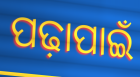
ପଢ଼ାପାଇଁ